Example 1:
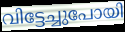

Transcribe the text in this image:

വിട്ടേച്ചുപോയി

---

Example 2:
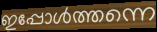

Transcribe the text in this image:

ഇപ്പോൾത്തന്നെ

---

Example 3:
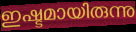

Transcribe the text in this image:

ഇഷ്ടമായിരുന്നു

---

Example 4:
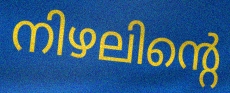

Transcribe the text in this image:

നിഴലിന്റെ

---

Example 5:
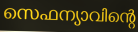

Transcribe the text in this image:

സെഫന്യാവിന്റെ